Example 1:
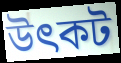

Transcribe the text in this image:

উৎকট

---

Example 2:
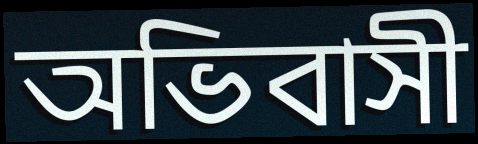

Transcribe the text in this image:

অভিবাসী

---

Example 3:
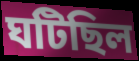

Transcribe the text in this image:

ঘটিছিল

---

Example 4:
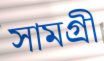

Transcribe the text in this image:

সামগ্ৰী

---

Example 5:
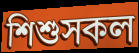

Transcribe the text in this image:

শিশুসকল